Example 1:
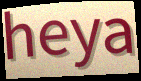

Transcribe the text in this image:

heya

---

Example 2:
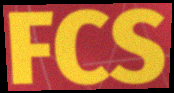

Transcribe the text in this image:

FCS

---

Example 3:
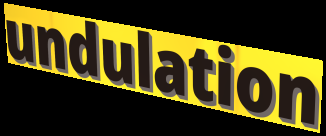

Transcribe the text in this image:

undulation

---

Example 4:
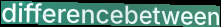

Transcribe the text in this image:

differencebetween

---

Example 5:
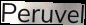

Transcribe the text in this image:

Peruvel